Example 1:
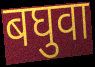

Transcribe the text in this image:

बघुवा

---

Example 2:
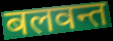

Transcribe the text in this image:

बलवन्‍त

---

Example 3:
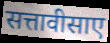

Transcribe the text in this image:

सत्तावीसाए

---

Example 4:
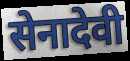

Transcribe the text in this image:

सेनादेवी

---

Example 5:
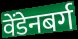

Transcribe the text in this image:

वेंडेनबर्ग